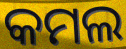
କମଲ